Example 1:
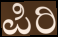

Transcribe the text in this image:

ಪಿರಿ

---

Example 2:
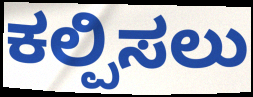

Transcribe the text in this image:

ಕಲ್ಪಿಸಲು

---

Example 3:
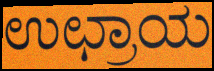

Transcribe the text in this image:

ಉಛ್ರಾಯ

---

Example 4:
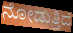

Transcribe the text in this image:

ನೋಡುತ್ತಿದೆ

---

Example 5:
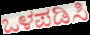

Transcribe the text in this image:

ಒಳಪಡಿಸಿ